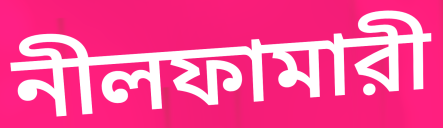
নীলফামারী